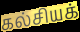
கல்சியக்